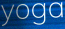
yoga